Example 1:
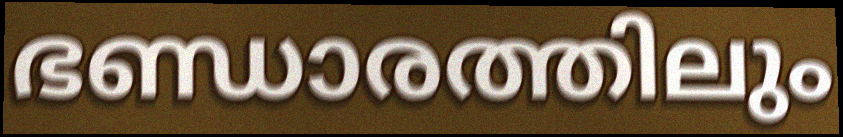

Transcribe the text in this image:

ഭണ്ഡാരത്തിലും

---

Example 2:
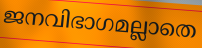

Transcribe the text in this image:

ജനവിഭാഗമല്ലാതെ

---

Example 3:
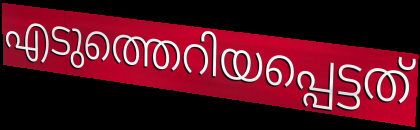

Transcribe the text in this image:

എടുത്തെറിയപ്പെട്ടത്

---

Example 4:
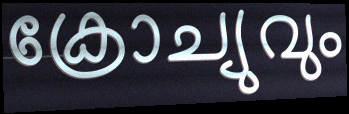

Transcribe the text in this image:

ക്രോച്യുവും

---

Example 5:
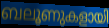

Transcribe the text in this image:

ബലൂണുകളായി